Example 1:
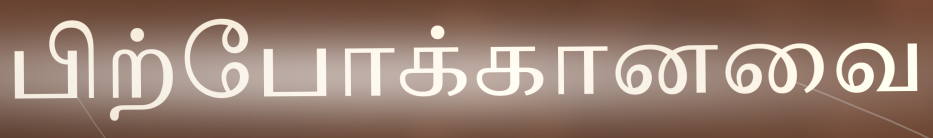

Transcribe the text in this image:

பிற்போக்கானவை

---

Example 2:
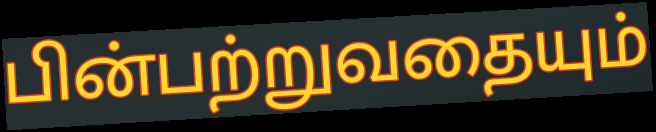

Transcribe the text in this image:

பின்பற்றுவதையும்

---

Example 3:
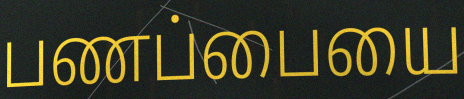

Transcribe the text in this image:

பணப்பையை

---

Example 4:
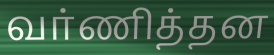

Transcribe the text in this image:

வர்ணித்தன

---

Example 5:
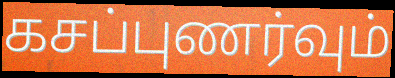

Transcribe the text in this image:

கசப்புணர்வும்